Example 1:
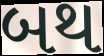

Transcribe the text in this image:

બથ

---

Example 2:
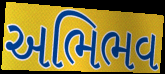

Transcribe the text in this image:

અભિભવ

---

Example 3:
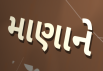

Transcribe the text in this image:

માણાને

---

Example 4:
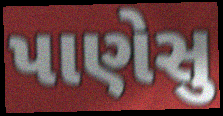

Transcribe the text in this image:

પાણેસુ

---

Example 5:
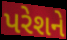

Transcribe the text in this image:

પરેશને